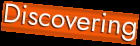
Discovering